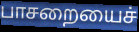
பாசறையைச்